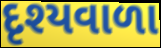
દૃશ્યવાળા